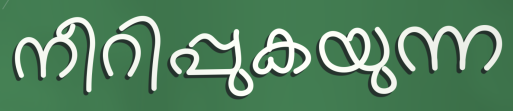
നീറിപ്പുകയുന്ന